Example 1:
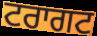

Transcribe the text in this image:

ਟਰਾਗਟ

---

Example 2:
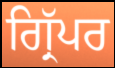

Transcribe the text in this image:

ਗ੍ਰਿੱਪਰ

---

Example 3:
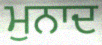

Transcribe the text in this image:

ਮੁਨਾਦ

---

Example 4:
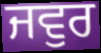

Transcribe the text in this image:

ਜਵੁਰ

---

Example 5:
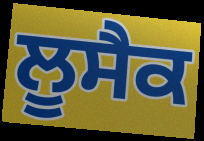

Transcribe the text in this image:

ਲੂਸੈਕ